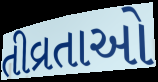
તીવ્રતાઓ